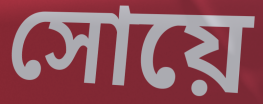
সোয়ে